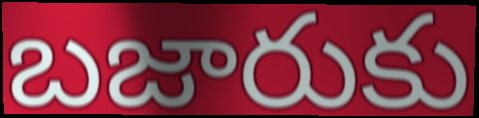
బజారుకు